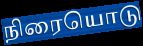
நிரையொடு